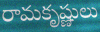
రామకృష్ణులు